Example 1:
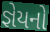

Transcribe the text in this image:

જ્ઞેયનો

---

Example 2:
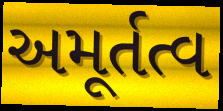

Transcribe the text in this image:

અમૂર્તત્વ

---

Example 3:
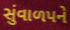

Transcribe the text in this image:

સુંવાળપને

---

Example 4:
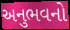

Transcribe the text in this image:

અનુભવનો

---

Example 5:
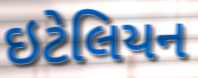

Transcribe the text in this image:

ઇટેલિયન